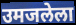
उमजलेला